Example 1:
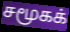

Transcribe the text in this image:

சமூகக்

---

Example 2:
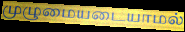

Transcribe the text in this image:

முழுமையடையாமல்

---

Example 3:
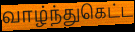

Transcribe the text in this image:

வாழ்ந்துகெட்ட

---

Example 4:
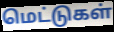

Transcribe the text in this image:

மெட்டுகள்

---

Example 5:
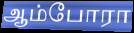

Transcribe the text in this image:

ஆம்போரா